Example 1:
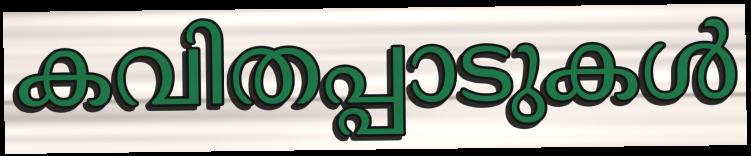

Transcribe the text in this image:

കവിതപ്പാടുകൾ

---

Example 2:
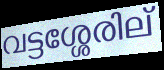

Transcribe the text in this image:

വട്ടശ്ശേരില്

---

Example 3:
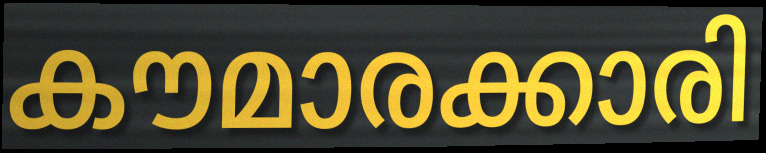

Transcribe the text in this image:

കൗമാരക്കാരി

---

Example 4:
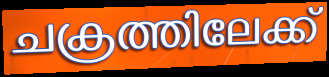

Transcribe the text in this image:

ചക്രത്തിലേക്ക്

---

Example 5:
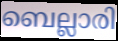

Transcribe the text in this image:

ബെല്ലാരി